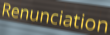
Renunciation